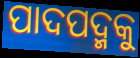
ପାଦପଦ୍ମକୁ